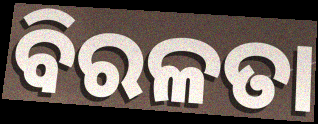
ବିରଳତା